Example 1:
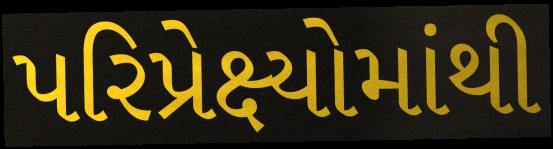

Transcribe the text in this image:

પરિપ્રેક્ષ્યોમાંથી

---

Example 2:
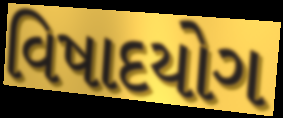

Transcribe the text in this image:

વિષાદયોગ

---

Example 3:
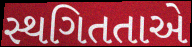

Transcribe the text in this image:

સ્થગિતતાએ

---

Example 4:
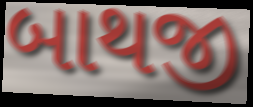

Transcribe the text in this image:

બાથજી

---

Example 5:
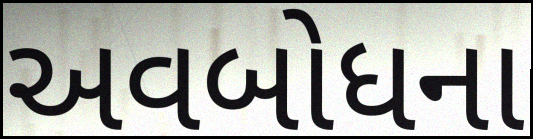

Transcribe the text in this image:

અવબોધના